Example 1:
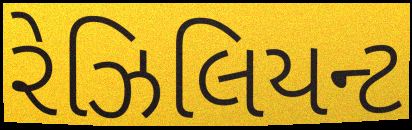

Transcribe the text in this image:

રેઝિલિયન્ટ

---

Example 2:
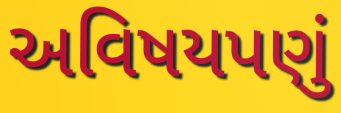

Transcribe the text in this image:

અવિષયપણું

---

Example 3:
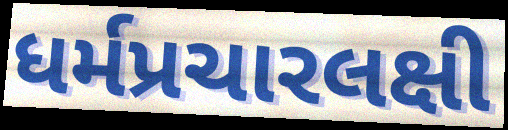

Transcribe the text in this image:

ધર્મપ્રચારલક્ષી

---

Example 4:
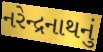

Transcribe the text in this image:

નરેન્દ્રનાથનું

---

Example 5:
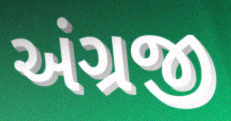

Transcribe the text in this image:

અંગ્રજી